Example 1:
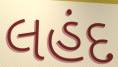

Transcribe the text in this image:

લહંદ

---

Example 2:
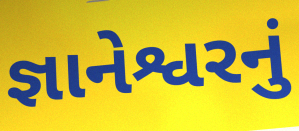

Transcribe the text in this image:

જ્ઞાનેશ્વરનું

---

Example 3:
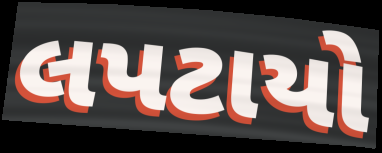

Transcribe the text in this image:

લપટાયો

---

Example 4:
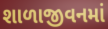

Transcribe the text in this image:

શાળાજીવનમાં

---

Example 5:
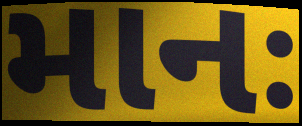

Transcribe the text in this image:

માનઃ